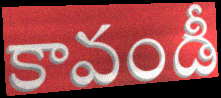
కావండీ